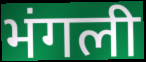
भंगली